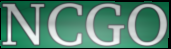
NCGO